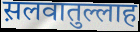
स़लवातुल्लाह